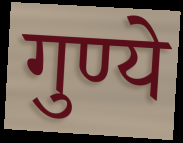
गुण्ये